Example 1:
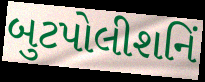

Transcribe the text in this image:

બુટપોલીશનિં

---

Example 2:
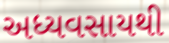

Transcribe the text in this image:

અધ્યવસાયથી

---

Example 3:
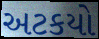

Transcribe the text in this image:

અટકયો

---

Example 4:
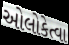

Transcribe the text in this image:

ઓલોકેત્વા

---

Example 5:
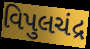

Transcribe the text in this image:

વિપુલચંદ્ર